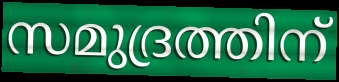
സമുദ്രത്തിന്